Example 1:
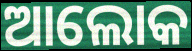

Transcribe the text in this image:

ଆଲୋକ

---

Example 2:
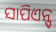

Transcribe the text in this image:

ସାପିଏନ୍ସ୍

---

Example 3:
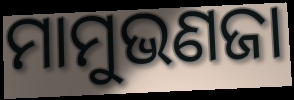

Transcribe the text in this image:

ମାମୁଭଣଜା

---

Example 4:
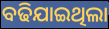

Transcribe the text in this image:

ବଢିଯାଇଥିଲା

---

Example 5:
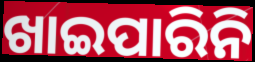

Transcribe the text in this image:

ଖାଇପାରିନି